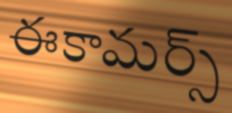
ఈకామర్స్